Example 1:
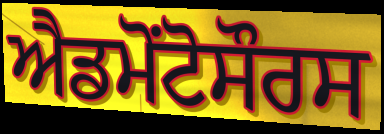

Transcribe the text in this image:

ਐਡਮੋਂਟੋਸੌਰਸ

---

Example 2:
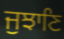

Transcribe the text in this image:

ਜੁਝਾਣਿ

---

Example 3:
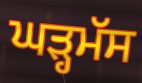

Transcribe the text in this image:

ਘੜ੍ਹਮੱਸ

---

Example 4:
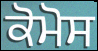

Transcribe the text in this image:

ਕੋਮੋਸ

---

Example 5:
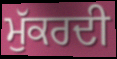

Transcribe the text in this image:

ਮੁੱਕਰਦੀ